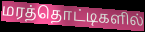
மரத்தொட்டிகளில்